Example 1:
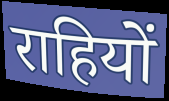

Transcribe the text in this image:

राहियों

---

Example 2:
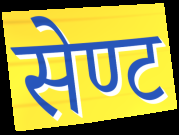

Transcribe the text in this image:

सेण्ट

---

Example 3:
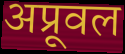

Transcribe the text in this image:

अप्रूवल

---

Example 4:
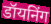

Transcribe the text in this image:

डॉयनिंग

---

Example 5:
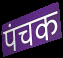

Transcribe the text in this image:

पंचक